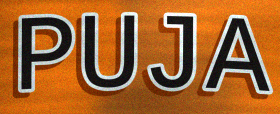
PUJA